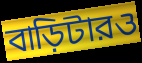
বাড়িটারও